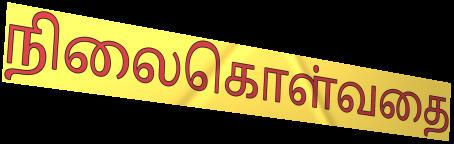
நிலைகொள்வதை